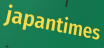
japantimes